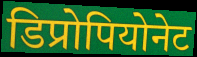
डिप्रोपियोनेट